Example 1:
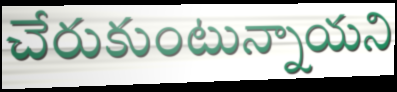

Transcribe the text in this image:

చేరుకుంటున్నాయని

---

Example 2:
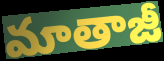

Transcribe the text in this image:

మాతాజీ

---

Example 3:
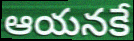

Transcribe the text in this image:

ఆయనకే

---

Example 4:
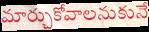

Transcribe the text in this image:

మార్చుకోవాలనుకునే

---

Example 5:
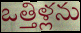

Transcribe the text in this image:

ఒత్తిళ్లను